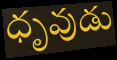
ధృవుడు